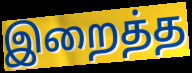
இறைத்த